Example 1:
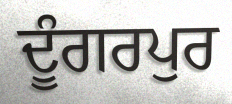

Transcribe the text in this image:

ਦੂੰਗਰਪੁਰ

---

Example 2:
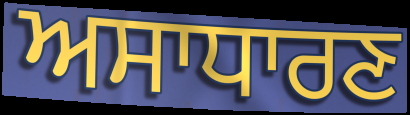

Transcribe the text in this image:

ਅਸਾਧਾਰਣ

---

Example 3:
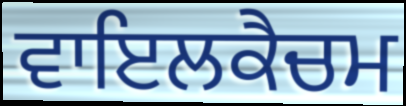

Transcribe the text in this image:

ਵਾਇਲਕੈਚਮ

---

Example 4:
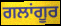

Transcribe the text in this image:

ਗਲਾਂਗੂਰ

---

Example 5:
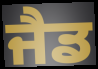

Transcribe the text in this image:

ਜੈਡ